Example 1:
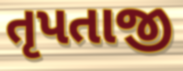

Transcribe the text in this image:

તૃપતાજી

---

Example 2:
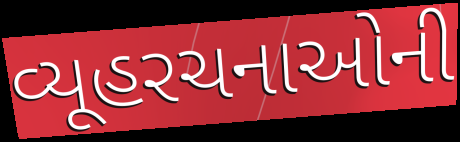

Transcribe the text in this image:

વ્યૂહરચનાઓની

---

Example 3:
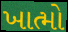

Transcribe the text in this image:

ખાત્મો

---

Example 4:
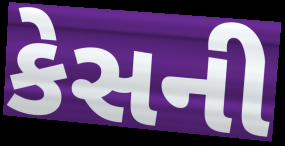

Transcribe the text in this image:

કેસની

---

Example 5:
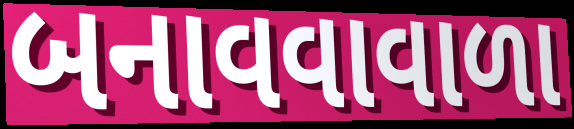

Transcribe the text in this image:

બનાવવાવાળા